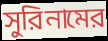
সুরিনামের